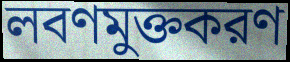
লবণমুক্তকরণ